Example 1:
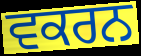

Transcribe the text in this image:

ਵਕਰਨ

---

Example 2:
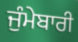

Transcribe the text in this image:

ਜੁੰਮੇਬਾਰੀ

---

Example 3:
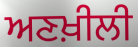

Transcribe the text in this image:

ਅਣਖ਼ੀਲੀ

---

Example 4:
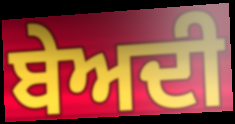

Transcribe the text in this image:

ਬੇਅਦੀ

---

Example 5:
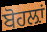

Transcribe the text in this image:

ਬੋਹਲ਼ਾਂ